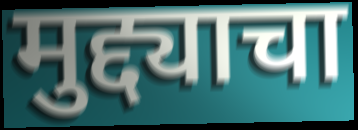
मुद्द्याचा